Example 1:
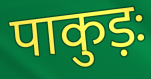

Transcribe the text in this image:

पाकुड़ः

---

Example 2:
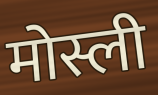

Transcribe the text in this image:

मोस्ली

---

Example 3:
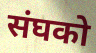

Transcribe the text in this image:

संघको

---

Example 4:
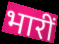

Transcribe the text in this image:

भारीं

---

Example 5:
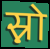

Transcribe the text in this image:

स्नो